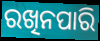
ରଖିନପାରି